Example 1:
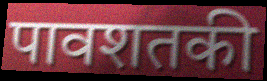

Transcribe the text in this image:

पावशतकी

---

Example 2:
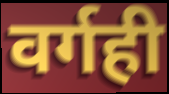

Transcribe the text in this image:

वर्गही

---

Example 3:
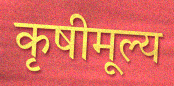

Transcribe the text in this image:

कृषीमूल्य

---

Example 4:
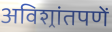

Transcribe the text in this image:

अविश्रांतपणें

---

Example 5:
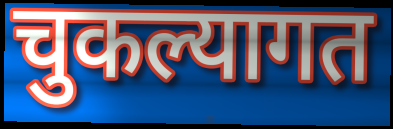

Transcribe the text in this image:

चुकल्यागत